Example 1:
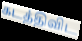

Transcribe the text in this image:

கடத்திவிட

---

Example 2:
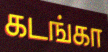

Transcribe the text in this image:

கடங்கா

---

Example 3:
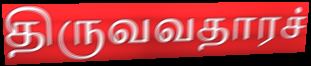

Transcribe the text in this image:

திருவவதாரச்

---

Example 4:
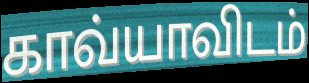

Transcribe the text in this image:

காவ்யாவிடம்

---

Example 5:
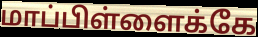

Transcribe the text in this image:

மாப்பிள்ளைக்கே